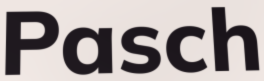
Pasch